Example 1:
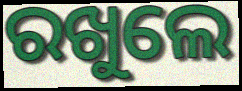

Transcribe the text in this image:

ରଖୁଲେ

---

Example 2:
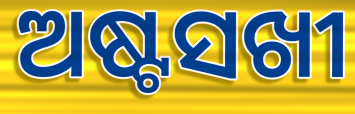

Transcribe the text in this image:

ଅଷ୍ଟସଖୀ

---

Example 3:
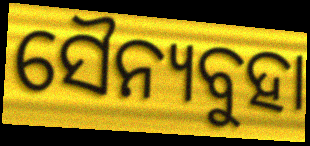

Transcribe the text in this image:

ସୈନ୍ୟବୁହା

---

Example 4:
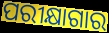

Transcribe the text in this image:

ପରୀକ୍ଷାଗାର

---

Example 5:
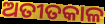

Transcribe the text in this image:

ଅତୀତକାଳ